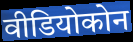
वीडियोकोन